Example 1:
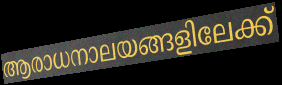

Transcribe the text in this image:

ആരാധനാലയങ്ങളിലേക്ക്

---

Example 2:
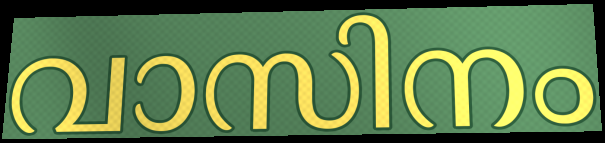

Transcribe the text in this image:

വാസിനം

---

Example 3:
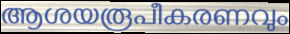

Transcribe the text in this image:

ആശയരൂപീകരണവും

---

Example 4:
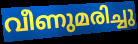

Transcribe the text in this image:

വീണുമരിച്ചു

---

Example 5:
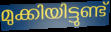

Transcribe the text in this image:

മുക്കിയിട്ടുണ്ട്